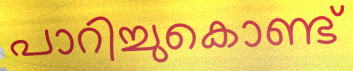
പാറിച്ചുകൊണ്ട്